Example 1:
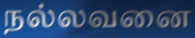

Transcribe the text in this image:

நல்லவனை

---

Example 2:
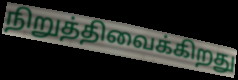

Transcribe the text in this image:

நிறுத்திவைக்கிறது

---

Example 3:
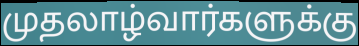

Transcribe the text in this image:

முதலாழ்வார்களுக்கு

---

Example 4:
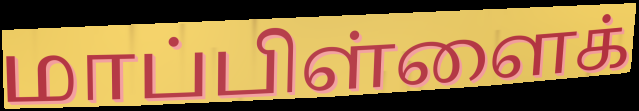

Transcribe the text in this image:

மாப்பிள்ளைக்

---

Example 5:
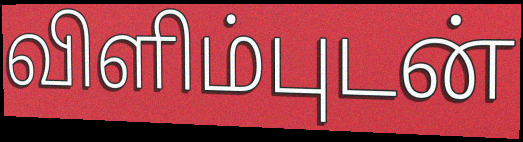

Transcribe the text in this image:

விளிம்புடன்